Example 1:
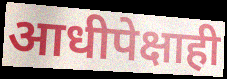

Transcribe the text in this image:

आधीपेक्षाही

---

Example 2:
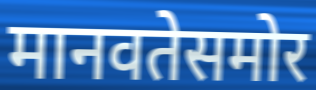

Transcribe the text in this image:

मानवतेसमोर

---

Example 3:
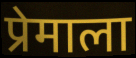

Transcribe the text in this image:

प्रेमाला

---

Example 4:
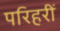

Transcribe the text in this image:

परिहरीं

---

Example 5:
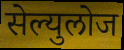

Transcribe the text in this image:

सेल्युलोज